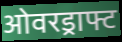
ओवरड्राफ्ट